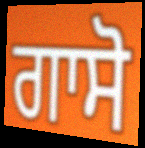
ਗਾਸੋ